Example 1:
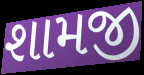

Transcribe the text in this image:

શામજી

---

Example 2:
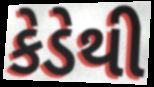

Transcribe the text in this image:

કેડેથી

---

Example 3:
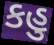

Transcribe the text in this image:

કહુ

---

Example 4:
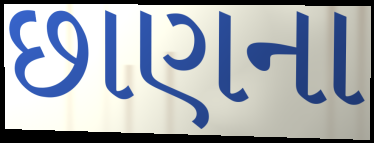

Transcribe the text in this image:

છાણના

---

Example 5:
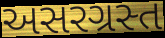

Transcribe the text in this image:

અસરગ્રસ્ત